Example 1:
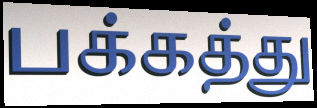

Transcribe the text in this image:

பக்கத்து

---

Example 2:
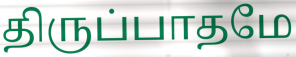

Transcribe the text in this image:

திருப்பாதமே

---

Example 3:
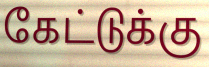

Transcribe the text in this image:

கேட்டுக்கு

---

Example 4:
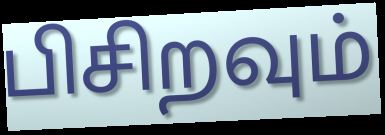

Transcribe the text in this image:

பிசிறவும்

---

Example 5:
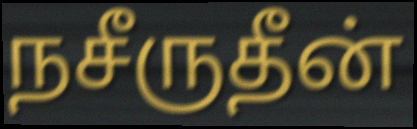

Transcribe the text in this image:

நசீருதீன்